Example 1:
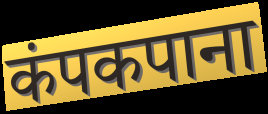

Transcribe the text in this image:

कंपकपाना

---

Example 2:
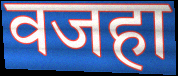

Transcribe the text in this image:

वजहा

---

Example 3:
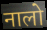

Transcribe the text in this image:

नालो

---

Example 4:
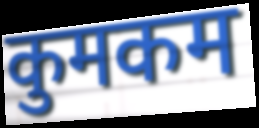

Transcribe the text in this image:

कुमकम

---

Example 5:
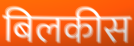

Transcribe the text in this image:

बिलकीस